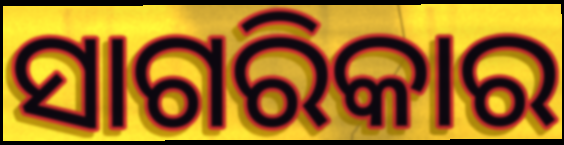
ସାଗରିକାର